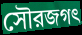
সৌরজগৎ